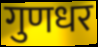
गुणधर